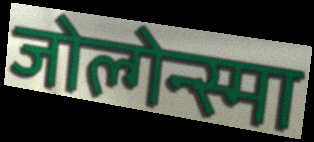
जोल्गेन्स्मा